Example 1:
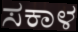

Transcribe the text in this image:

ಸಕಾಳ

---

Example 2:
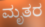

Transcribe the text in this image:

ಮೃತರ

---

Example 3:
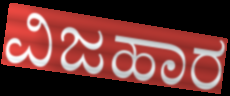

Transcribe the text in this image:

ವಿಜಹಾರ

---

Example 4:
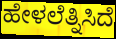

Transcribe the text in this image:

ಹೇಳಲೆತ್ನಿಸಿದೆ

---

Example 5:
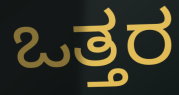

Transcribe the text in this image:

ಒತ್ತರ